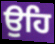
ਉਹਿ